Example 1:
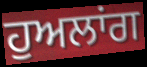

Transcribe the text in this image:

ਹੁਅਲਾਂਗ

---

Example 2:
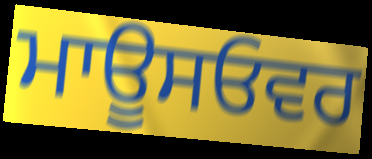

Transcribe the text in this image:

ਮਾਊਸਓਵਰ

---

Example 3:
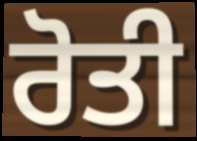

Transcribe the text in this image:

ਰੋਤੀ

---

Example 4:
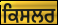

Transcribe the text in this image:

ਕਿਸਲਰ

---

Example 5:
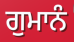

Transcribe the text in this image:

ਗੁਮਾਨੰ